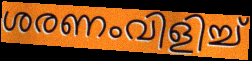
ശരണംവിളിച്ച്